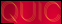
QUIC